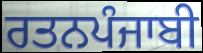
ਰਤਨਪੰਜਾਬੀ